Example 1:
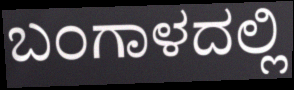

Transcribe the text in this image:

ಬಂಗಾಳದಲ್ಲಿ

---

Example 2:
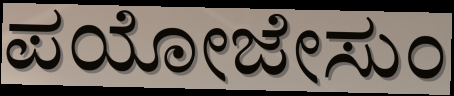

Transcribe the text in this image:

ಪಯೋಜೇಸುಂ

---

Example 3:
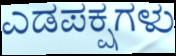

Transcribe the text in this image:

ಎಡಪಕ್ಷಗಳು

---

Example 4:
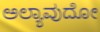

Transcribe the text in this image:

ಅಲ್ಯಾವುದೋ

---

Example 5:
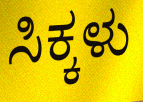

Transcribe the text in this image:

ಸಿಕ್ಕಳು